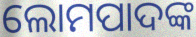
ଲୋମପାଦଙ୍କ